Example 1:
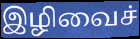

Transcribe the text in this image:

இழிவைச்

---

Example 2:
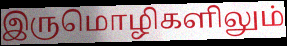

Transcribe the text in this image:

இருமொழிகளிலும்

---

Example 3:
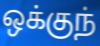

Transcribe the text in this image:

ஒக்குந்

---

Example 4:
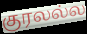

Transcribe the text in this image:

குரலல்ல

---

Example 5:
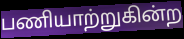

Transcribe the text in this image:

பணியாற்றுகின்ற